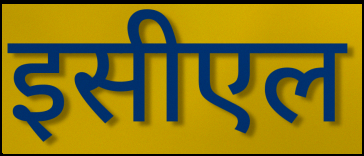
इसीएल